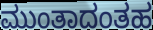
ಮುಂತಾದಂತಹ